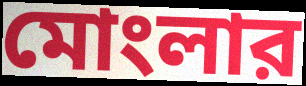
মোংলার